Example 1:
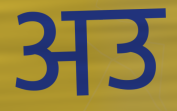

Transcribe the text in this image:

अउ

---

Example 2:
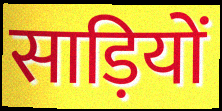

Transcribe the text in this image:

साड़ियों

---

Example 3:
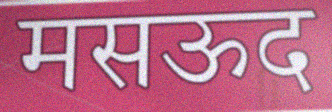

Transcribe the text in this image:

मसऊद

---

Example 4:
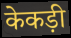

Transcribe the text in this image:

केकड़ी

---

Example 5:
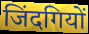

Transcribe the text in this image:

जिंदगियों